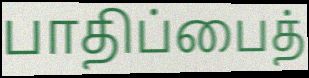
பாதிப்பைத்